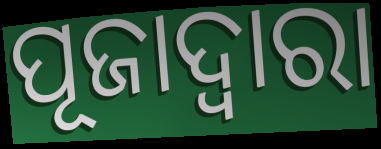
ପୂଜାଦ୍ଵାରା